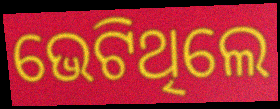
ଭେଟିଥିଲେ